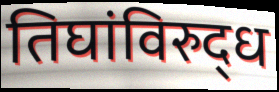
तिघांविरुद्ध